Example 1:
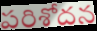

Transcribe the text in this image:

పరిశోదన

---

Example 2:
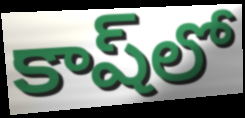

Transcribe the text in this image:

కాష్‌లో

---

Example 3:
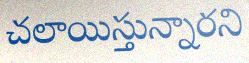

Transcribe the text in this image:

చలాయిస్తున్నారని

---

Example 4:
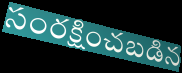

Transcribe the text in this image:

సంరక్షించబడిన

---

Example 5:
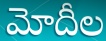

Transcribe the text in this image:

మోదీల